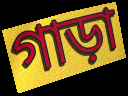
গাড়া